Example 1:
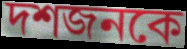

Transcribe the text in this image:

দশজনকে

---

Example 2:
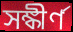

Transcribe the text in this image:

সঙ্কীর্ণ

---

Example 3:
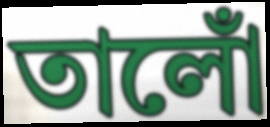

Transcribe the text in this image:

তালোঁ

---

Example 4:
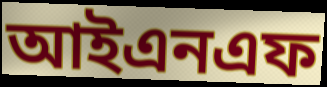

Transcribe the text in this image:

আইএনএফ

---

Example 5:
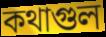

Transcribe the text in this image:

কথাগুল